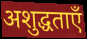
अशुद्धताएँ